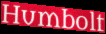
Humbolt